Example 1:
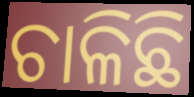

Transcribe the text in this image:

ଚାଳିଛି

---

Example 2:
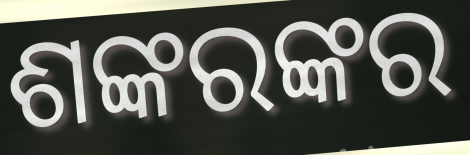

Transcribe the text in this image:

ଶଙ୍କରଙ୍କର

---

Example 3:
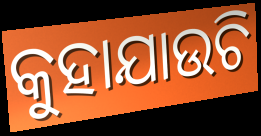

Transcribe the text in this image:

କୁହାଯାଉଚି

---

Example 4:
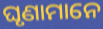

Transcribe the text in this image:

ଘୃଣାମାନେ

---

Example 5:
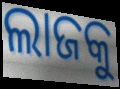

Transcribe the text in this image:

ଲାଜକୁ